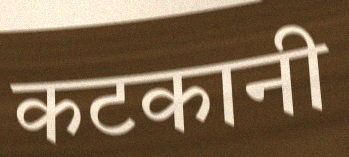
कटकानी